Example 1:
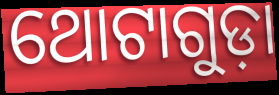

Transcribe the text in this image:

ଥୋଟାଗୁଡ଼ା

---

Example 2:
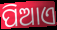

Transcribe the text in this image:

ପିଆଏ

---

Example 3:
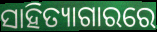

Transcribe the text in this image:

ସାହିତ୍ୟାଗାରରେ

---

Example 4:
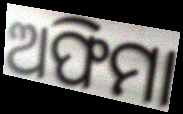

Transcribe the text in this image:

ଅଫିମା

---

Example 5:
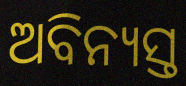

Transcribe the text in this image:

ଅବିନ୍ୟସ୍ତ